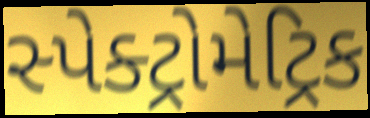
સ્પેક્ટ્રોમેટ્રિક